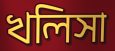
খলিসা